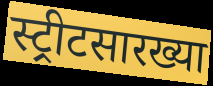
स्ट्रीटसारख्या